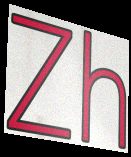
Zh